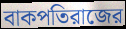
বাকপতিরাজের